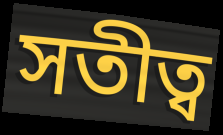
সতীত্ব